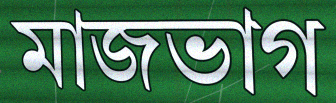
মাজভাগ